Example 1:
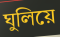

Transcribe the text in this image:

ঘুলিয়ে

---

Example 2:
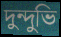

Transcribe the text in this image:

দুন্দুভি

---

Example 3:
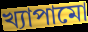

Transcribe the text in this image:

খ্যাপামো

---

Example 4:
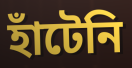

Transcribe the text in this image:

হাঁটেনি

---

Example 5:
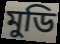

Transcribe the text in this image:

মুডি